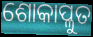
ଶୋକାପ୍ଳୁତ